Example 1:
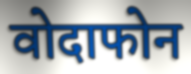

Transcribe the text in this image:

वोदाफोन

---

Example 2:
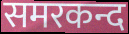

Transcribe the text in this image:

समरकन्द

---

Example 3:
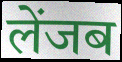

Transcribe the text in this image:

लेंजब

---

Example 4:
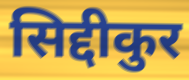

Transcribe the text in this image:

सिद्दीकुर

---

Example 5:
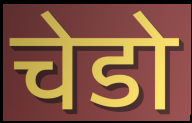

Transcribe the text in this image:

चेडो